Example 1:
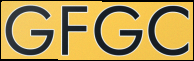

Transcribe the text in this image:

GFGC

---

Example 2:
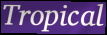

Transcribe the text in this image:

Tropical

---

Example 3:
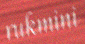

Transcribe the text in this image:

rukmini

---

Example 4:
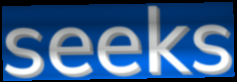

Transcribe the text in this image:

seeks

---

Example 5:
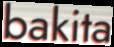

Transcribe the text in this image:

bakita